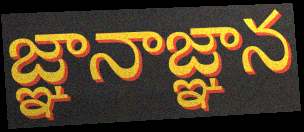
జ్ఞానాజ్ఞాన